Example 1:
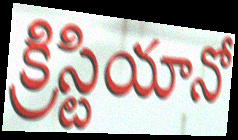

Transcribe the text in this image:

క్రిస్టియానో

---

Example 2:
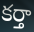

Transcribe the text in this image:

కర్తా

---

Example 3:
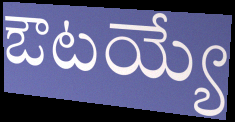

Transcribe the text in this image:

ఔటయ్యే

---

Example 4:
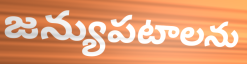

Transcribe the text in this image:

జన్యుపటాలను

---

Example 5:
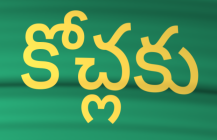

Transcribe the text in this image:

కోచ్లకు